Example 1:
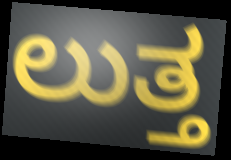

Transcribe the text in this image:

ಲುತ್ತ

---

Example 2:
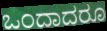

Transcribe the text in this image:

ಒಂದಾದರೂ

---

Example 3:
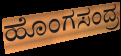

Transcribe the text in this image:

ಹೊಂಗಸಂದ್ರ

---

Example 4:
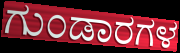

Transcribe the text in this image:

ಗುಂಡಾರಗಳ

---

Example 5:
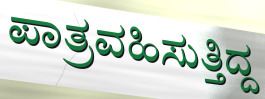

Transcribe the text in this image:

ಪಾತ್ರವಹಿಸುತ್ತಿದ್ದ